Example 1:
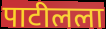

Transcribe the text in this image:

पाटीलला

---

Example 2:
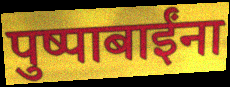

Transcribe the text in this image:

पुष्पाबाईंना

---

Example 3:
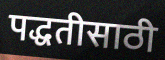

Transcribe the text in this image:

पद्धतीसाठी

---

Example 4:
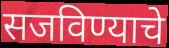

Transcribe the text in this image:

सजविण्याचे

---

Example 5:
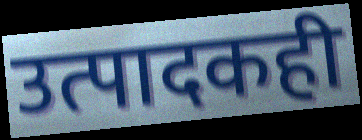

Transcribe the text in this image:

उत्पादकही